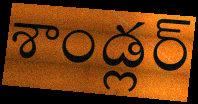
శాండ్లర్